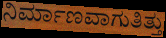
ನಿರ್ಮಾಣವಾಗುತಿತ್ತು